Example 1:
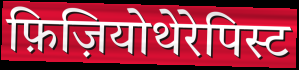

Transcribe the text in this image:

फ़िज़ियोथेरेपिस्ट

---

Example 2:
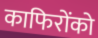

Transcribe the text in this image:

काफिरोंको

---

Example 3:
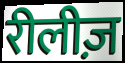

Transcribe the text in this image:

रीलीज़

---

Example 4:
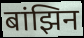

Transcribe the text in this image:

बांझिन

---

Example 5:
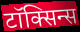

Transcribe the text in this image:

टॉक्सिन्स